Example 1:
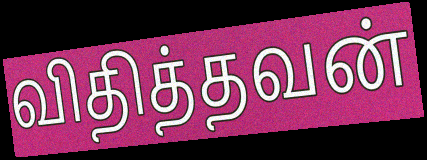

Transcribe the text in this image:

விதித்தவன்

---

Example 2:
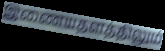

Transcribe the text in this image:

இணையதளத்திலும்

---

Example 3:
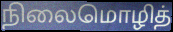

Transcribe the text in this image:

நிலைமொழித்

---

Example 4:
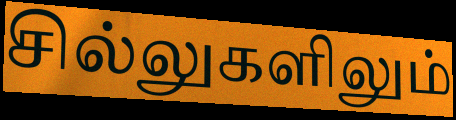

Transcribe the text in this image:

சில்லுகளிலும்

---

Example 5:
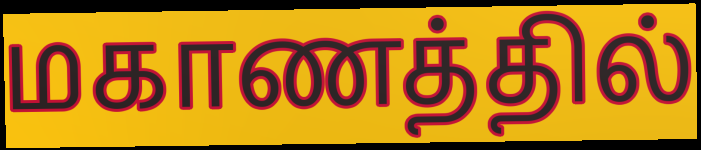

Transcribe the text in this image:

மகாணத்தில்